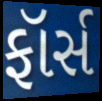
ફૉર્સ